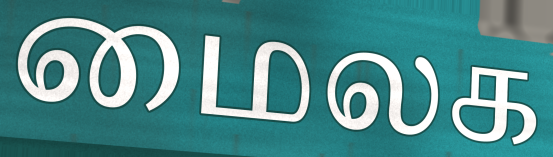
மைலக